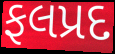
ફલપ્રદ